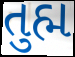
તુહ્મ